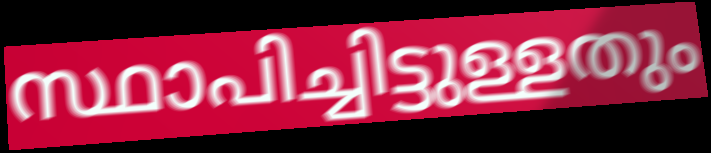
സ്ഥാപിച്ചിട്ടുള്ളതും